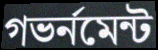
গভর্নমেন্ট